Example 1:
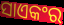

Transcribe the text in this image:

ସାଏକଂର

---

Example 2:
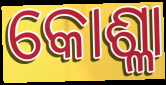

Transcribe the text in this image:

କୋଶ୍ଳା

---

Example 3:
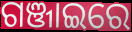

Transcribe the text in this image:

ଗଞ୍ଜାଇରେ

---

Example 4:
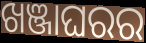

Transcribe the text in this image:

ଖଞ୍ଜାଘରର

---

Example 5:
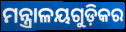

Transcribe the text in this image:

ମନ୍ତ୍ରାଳୟଗୁଡ଼ିକର